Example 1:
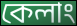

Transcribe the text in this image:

কেলাং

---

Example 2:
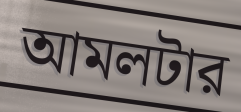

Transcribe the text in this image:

আমলটার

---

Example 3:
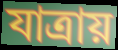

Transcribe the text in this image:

যাত্রায়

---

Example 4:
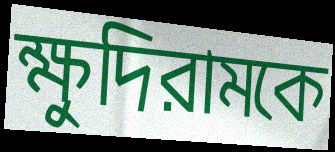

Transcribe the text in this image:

ক্ষুদিরামকে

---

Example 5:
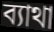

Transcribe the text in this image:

ব্যাথা